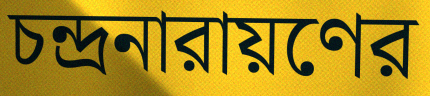
চন্দ্রনারায়ণের